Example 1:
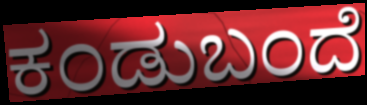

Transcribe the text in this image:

ಕಂಡುಬಂದೆ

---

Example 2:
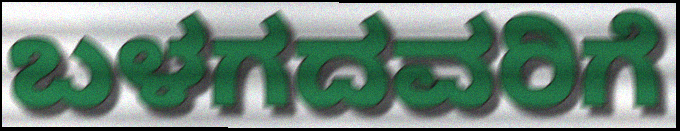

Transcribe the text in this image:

ಬಳಗದವರಿಗೆ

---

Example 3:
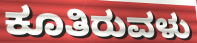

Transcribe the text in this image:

ಕೂತಿರುವಳು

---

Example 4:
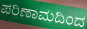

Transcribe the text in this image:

ಪರಿಣಾಮದಿಂದ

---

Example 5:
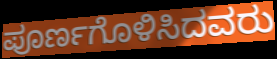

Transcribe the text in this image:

ಪೂರ್ಣಗೊಳಿಸಿದವರು